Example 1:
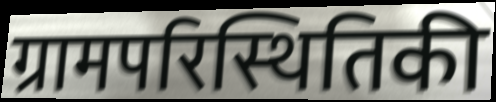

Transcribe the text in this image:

ग्रामपरिस्थितिकी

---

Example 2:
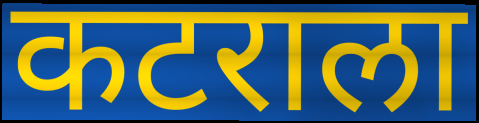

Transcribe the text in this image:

कटराला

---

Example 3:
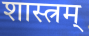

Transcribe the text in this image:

शास्त्रम्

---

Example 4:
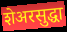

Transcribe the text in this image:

शेअरसुद्धा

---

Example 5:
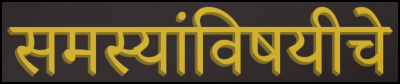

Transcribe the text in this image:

समस्यांविषयीचे